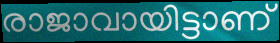
രാജാവായിട്ടാണ്